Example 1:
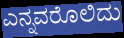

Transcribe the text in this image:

ಎನ್ನವರೊಲಿದು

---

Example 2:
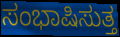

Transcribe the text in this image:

ಸಂಭಾಷಿಸುತ್ತ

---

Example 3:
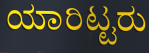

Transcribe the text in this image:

ಯಾರಿಟ್ಟರು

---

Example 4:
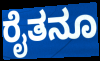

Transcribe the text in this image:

ರೈತನೂ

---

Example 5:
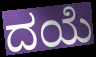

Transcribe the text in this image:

ದಯೆ